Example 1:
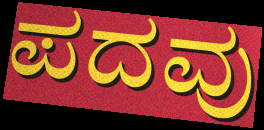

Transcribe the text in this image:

ಪದವು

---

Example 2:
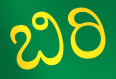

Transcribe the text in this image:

ಬಿರಿ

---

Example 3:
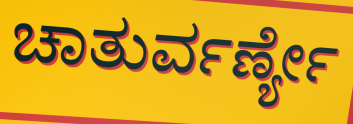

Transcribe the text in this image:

ಚಾತುರ್ವರ್ಣ್ಯೇ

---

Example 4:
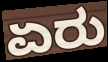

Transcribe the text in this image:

ಏರು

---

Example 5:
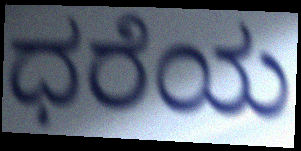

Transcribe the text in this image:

ಧರೆಯ